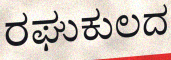
ರಘುಕುಲದ